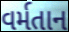
વર્મતાન